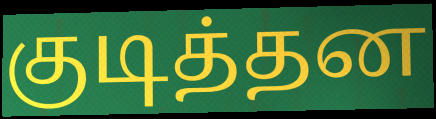
குடித்தன